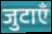
जुटाएँ